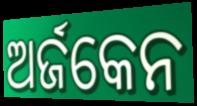
ଅର୍ଜକେନ